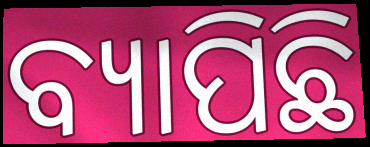
ବ୍ୟାପିଛି